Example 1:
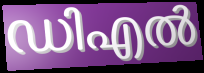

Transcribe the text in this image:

ഡിഎൽ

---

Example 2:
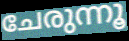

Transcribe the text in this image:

ചേരുന്നൂ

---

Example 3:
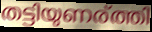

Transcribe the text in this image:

തട്ടിയുണര്ത്തി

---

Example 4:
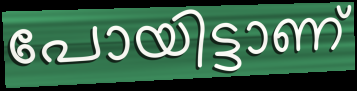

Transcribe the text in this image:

പോയിട്ടാണ്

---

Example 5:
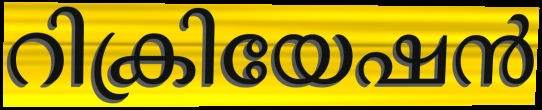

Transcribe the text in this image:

റിക്രിയേഷൻ